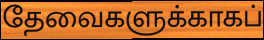
தேவைகளுக்காகப்